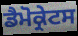
ਡੈਮੋਕ੍ਰੇਟਸ